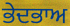
ਭੇਦਭਾਅ